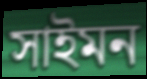
সাইমন